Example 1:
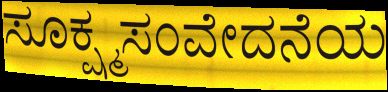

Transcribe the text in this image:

ಸೂಕ್ಷ್ಮಸಂವೇದನೆಯ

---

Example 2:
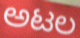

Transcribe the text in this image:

ಅಟಲ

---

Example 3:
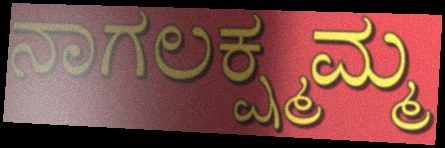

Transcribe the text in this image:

ನಾಗಲಕ್ಷ್ಮಮ್ಮ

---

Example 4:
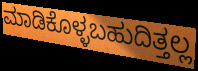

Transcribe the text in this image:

ಮಾಡಿಕೊಳ್ಳಬಹುದಿತ್ತಲ್ಲ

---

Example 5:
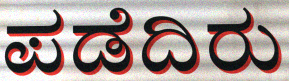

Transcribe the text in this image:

ಪಡೆದಿರು